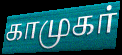
காமுகர்